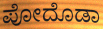
ಪೋದೊಡಾ